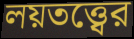
লয়তত্ত্বের